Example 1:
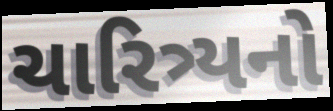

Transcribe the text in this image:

ચારિત્ર્યનો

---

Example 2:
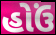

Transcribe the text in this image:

હોઉં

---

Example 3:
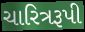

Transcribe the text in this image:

ચારિત્રરૂપી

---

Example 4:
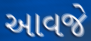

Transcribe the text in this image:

આવજે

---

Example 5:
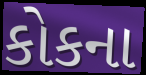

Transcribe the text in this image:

કોકના